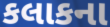
કલાકના